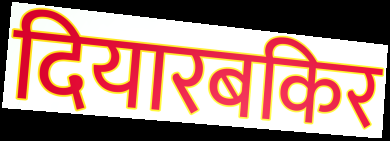
दियारबकिर